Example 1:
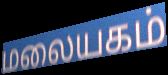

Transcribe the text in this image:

மலையகம்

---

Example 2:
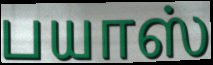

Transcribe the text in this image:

பயாஸ்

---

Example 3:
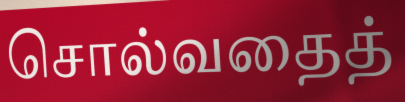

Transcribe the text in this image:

சொல்வதைத்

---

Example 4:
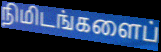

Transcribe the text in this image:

நிமிடங்களைப்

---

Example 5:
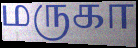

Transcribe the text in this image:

மருகா